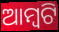
ଆମ୍ୱଟି